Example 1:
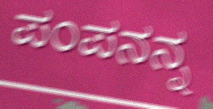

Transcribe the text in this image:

ಪಂಪನನ್ನ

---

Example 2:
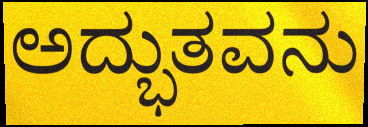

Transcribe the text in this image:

ಅದ್ಭುತವನು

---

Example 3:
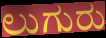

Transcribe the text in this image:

ಲುಗುರು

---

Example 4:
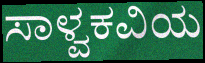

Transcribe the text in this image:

ಸಾಳ್ವಕವಿಯ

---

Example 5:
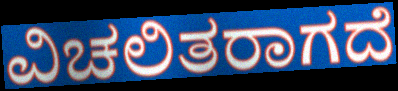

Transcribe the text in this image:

ವಿಚಲಿತರಾಗದೆ